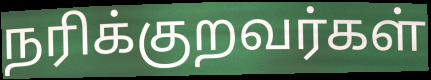
நரிக்குறவர்கள்